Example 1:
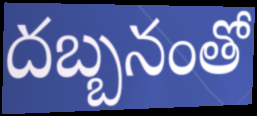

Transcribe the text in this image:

దబ్బనంతో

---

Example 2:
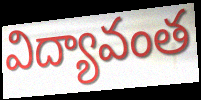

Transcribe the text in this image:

విద్యావంత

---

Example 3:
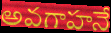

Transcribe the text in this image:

అవగాహనే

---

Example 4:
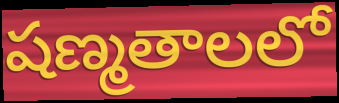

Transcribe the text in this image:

షణ్మతాలలో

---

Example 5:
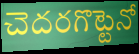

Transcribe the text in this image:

చెదరగొట్టెనో